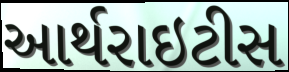
આર્થરાઇટીસ